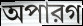
অপারগ